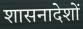
शासनादेशों